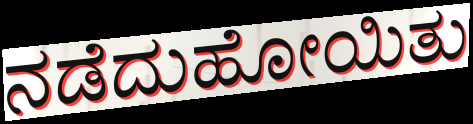
ನಡೆದುಹೋಯಿತು